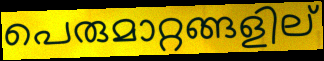
പെരുമാറ്റങ്ങളില്